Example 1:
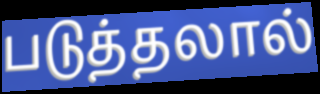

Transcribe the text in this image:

படுத்தலால்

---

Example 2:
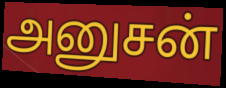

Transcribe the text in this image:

அனுசன்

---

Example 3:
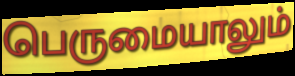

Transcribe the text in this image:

பெருமையாலும்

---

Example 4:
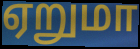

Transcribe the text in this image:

ஏறுமா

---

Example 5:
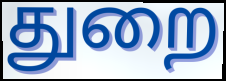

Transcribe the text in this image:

துறை